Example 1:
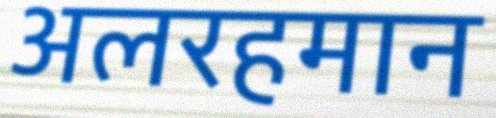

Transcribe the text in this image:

अलरहमान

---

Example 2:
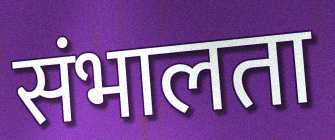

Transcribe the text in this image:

संभालता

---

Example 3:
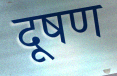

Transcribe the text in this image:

दूषण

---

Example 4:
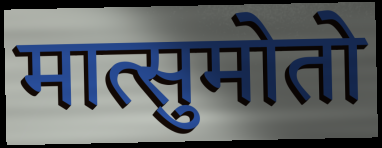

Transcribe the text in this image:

मात्सुमोतो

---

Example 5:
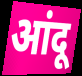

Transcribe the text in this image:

आंदू